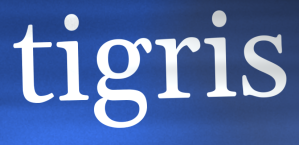
tigris